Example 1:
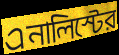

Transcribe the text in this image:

এনালিস্টের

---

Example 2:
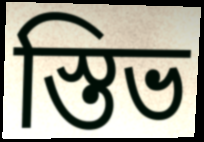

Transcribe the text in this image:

স্তিভ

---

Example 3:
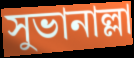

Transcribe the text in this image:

সুভানাল্লা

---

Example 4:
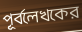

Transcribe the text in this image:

পূর্বলেখকের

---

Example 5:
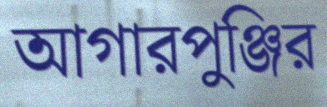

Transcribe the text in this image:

আগারপুঞ্জির